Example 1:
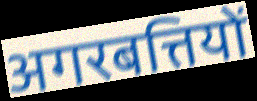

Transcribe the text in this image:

अगरबत्तियों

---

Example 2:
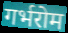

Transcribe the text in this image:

गर्भरोम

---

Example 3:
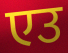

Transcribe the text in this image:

एउ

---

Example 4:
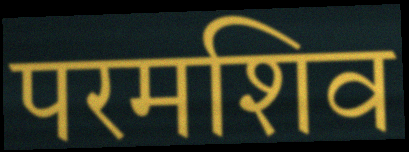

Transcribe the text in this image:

परमशिव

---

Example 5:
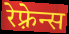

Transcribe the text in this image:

रेफ़्रेन्स